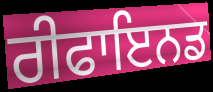
ਰੀਫਾਇਨਡ